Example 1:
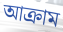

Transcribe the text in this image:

আক্ৰাম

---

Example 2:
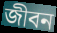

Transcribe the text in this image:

জীবন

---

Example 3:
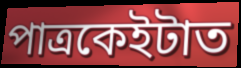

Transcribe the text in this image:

পাত্ৰকেইটাত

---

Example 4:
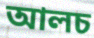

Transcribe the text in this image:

আলচ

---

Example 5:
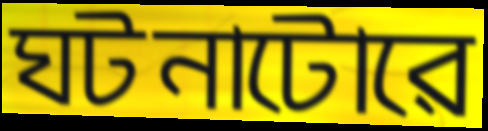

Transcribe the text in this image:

ঘটনাটোৱে